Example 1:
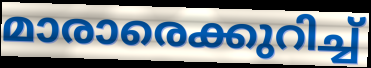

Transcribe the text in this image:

മാരാരെക്കുറിച്ച്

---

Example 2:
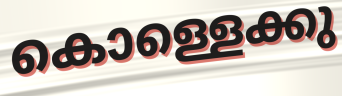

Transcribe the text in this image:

കൊള്ളെക്കു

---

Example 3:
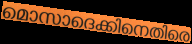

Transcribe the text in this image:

മൊസാദെക്കിനെതിരെ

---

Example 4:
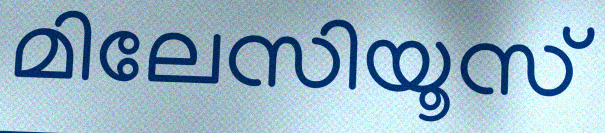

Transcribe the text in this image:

മിലേസിയൂസ്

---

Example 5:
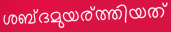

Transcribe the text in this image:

ശബ്ദമുയര്ത്തിയത്